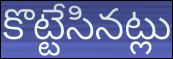
కొట్టేసినట్లు